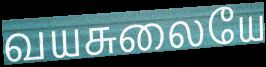
வயசுலையே